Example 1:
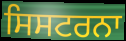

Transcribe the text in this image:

ਸਿਸਟਰਨਾ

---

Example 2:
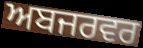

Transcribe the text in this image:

ਅਬਜਰਵਰ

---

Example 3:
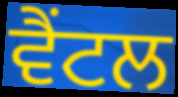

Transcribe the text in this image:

ਵੈਂਟਲ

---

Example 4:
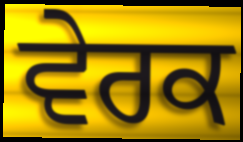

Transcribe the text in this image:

ਵੇਰਕ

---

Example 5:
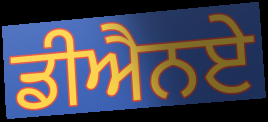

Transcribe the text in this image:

ਡੀਐਨਏ